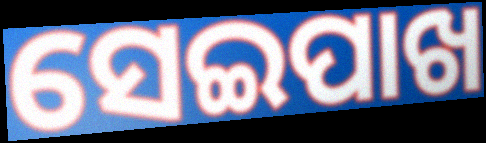
ସେଇପାଖ